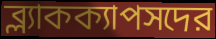
ব্ল্যাকক্যাপসদের